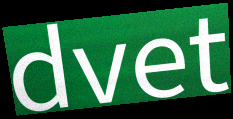
dvet